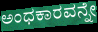
ಅಂಧಕಾರವನ್ನೇ